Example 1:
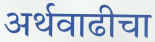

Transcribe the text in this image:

अर्थवाढीचा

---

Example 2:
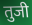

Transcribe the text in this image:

तुजी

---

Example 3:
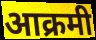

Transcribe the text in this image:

आक्रमी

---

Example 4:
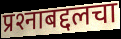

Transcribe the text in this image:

प्रश्नाबद्दलचा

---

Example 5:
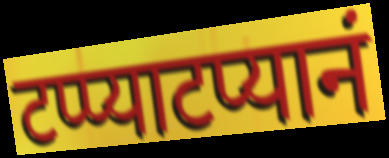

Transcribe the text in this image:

टप्प्याटप्यानं